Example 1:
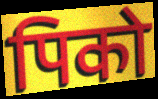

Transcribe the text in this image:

पिको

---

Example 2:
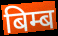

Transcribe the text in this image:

बिम्ब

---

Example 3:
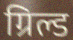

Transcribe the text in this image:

ग्रिल्ड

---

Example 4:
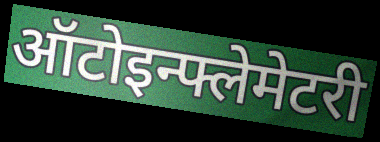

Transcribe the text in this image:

ऑटोइन्फ्लेमेटरी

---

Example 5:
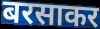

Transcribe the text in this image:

बरसाकर